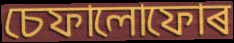
চেফালোফোৰ